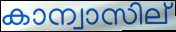
കാന്വാസില്